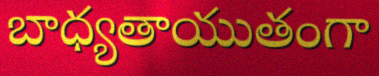
బాధ్యతాయుతంగా